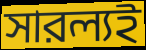
সারল্যই